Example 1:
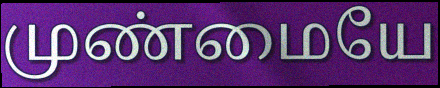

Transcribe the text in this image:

முண்மையே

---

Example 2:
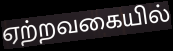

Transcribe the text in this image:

ஏற்றவகையில்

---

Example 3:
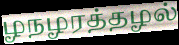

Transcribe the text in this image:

ழநழரத்தழல்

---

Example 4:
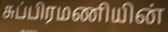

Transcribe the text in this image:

சுப்பிரமணியின்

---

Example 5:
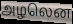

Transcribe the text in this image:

அழலென